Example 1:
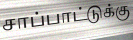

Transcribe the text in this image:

சாப்பாட்டுக்கு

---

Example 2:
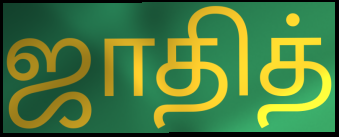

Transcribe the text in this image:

ஜாதித்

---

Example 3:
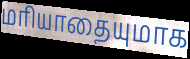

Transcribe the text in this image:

மரியாதையுமாக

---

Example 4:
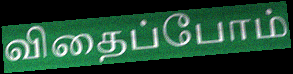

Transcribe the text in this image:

விதைப்போம்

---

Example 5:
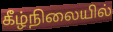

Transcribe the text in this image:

கீழ்நிலையில்